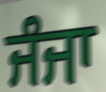
ਜੰਜਾ